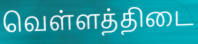
வெள்ளத்திடை